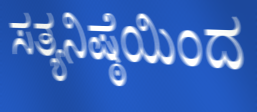
ಸತ್ಯನಿಷ್ಠೆಯಿಂದ